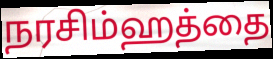
நரசிம்ஹத்தை